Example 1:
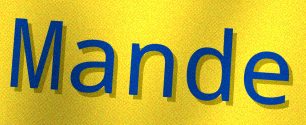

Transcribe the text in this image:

Mande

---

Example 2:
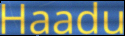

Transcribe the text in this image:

Haadu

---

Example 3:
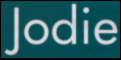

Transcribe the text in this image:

Jodie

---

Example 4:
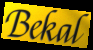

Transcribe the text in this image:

Bekal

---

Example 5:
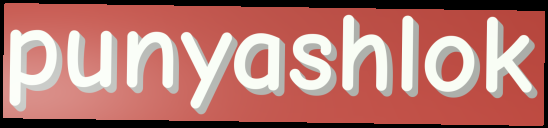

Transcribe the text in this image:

punyashlok